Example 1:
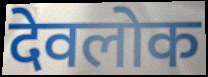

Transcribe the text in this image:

देवलोक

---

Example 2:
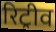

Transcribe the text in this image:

रिट्रीव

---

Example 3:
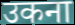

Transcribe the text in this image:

उकना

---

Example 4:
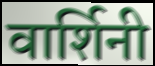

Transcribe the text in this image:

वार्शिनी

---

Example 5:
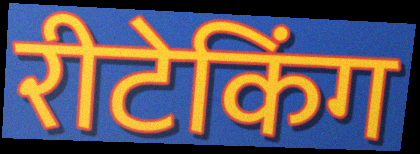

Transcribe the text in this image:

रीटेकिंग